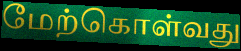
மேற்கொள்வது